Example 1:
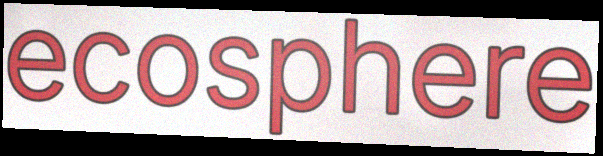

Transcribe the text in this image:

ecosphere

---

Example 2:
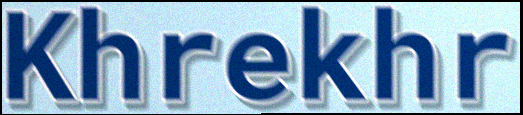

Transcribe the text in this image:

Khrekhr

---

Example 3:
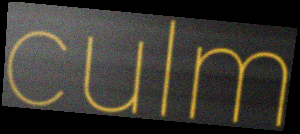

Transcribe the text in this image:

culm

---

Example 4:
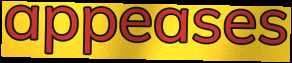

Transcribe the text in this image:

appeases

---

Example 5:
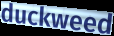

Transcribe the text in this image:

duckweed